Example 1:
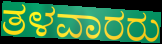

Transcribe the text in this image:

ತಳವಾರರು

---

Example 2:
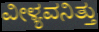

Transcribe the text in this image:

ವೀಳ್ಯವನಿತ್ತು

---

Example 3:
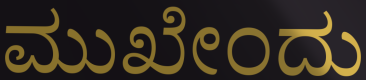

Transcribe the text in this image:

ಮುಖೇಂದು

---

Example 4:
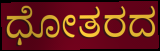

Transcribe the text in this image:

ಧೋತರದ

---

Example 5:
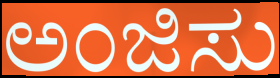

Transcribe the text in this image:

ಅಂಜಿಸು